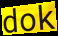
dok